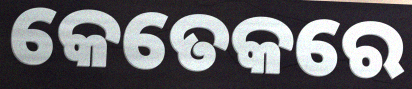
କେତେକରେ